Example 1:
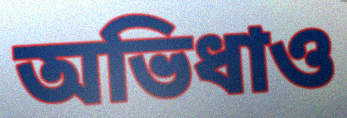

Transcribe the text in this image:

অভিধাও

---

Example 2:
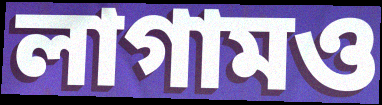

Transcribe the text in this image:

লাগামও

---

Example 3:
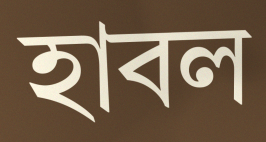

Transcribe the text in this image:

হাবল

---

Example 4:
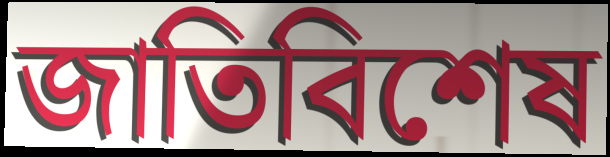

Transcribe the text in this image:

জাতিবিশেষ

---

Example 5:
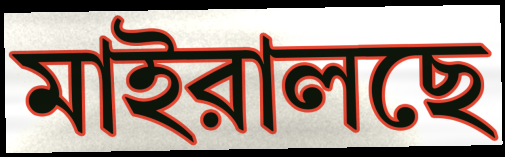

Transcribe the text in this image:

মাইরালছে